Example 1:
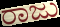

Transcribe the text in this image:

ರಾಜು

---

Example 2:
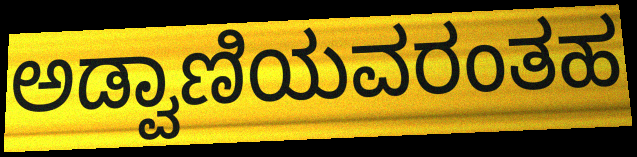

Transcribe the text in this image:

ಅಡ್ವಾಣಿಯವರಂತಹ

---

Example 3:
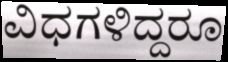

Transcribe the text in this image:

ವಿಧಗಳಿದ್ದರೂ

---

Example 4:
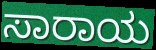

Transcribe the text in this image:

ಸಾರಾಯ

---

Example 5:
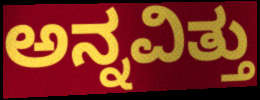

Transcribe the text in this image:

ಅನ್ನವಿತ್ತು